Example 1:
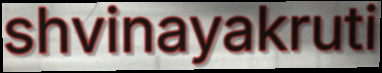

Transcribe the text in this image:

shvinayakruti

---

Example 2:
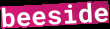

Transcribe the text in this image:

beeside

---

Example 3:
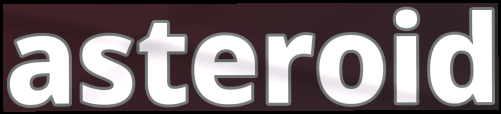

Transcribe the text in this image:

asteroid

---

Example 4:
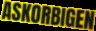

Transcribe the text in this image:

ASKORBIGEN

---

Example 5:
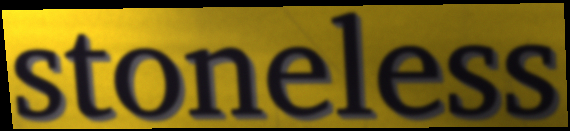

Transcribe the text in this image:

stoneless